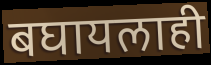
बघायलाही